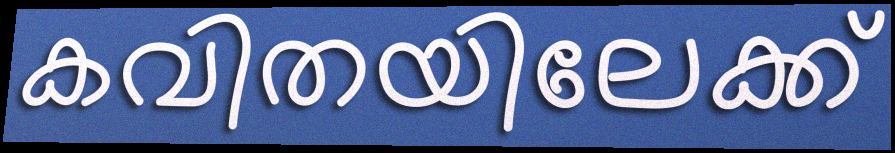
കവിതയിലേക്ക്